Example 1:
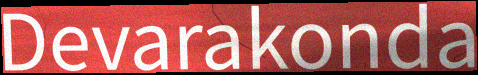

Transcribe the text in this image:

Devarakonda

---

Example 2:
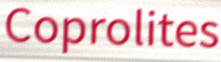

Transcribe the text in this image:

Coprolites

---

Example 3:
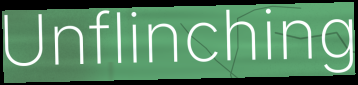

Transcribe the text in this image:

Unflinching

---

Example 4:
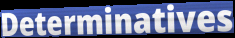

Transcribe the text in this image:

Determinatives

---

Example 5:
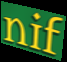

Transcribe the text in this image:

nif